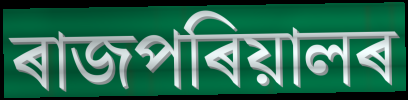
ৰাজপৰিয়ালৰ